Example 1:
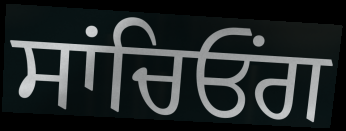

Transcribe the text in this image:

ਸਾਂਚਿਓਂਗ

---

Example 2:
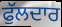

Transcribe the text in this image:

ਫੁੱਲਦਾਰ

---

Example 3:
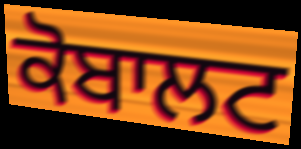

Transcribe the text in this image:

ਕੋਬਾਲਟ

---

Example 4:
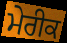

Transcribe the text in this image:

ਮੇਰੀਕ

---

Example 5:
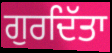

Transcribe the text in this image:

ਗੁਰਦਿੱਤਾ